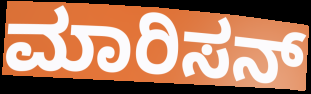
ಮಾರಿಸನ್